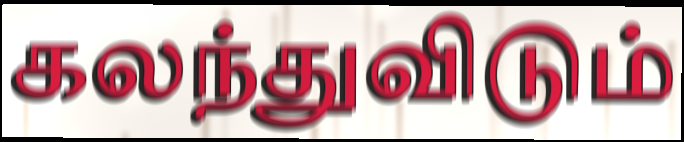
கலந்துவிடும்